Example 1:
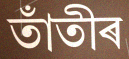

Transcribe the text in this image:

তাঁতীৰ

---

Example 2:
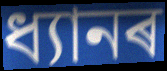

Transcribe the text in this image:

ধ্যানৰ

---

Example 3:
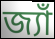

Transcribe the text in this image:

জ্যাঁ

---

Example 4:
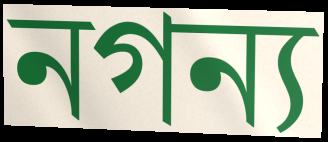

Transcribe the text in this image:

নগন্য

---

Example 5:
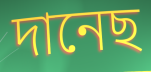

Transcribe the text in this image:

দানেছ